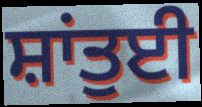
ਸ਼ਾਂਤੁਈ